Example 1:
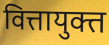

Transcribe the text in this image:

वित्तायुक्त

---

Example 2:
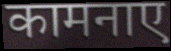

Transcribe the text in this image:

कामनाए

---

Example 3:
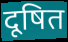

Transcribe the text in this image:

दूषित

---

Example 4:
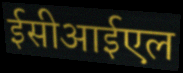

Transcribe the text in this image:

ईसीआईएल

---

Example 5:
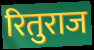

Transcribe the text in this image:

रितुराज